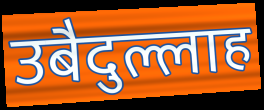
उबैदुल्लाह